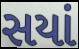
સયાં